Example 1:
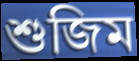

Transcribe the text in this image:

শুজিম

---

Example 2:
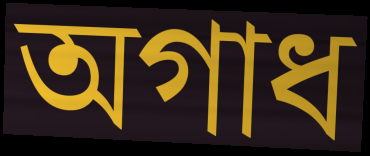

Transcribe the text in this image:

অগাধ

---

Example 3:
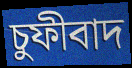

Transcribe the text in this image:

চুফীবাদ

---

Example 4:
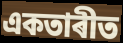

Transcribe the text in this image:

একতাৰীত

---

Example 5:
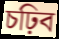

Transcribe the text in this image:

চঢ়িব